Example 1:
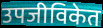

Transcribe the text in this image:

उपजीविकेत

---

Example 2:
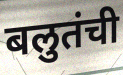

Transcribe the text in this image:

बलुतंची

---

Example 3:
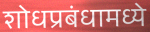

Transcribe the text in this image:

शोधप्रबंधामध्ये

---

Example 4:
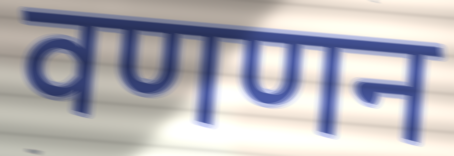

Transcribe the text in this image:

वणणन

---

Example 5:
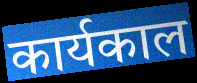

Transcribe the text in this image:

कार्यकाल